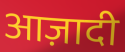
आज़ादी